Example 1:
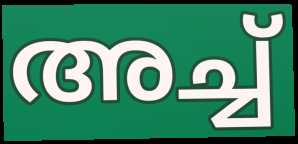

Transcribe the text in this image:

അച്ച്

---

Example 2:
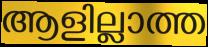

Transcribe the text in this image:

ആളില്ലാത്ത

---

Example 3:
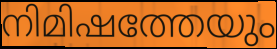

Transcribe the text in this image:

നിമിഷത്തേയും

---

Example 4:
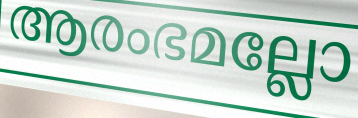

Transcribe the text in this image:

ആരംഭമല്ലോ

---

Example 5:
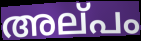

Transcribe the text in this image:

അല്‌പം